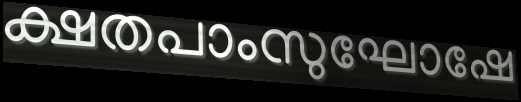
ക്ഷതപാംസുഘോഷേ